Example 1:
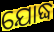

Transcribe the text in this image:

ଯୋଦ୍ଧ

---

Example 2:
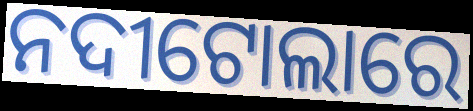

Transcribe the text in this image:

ନଦୀଟୋଲାରେ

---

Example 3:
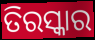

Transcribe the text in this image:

ତିରସ୍କାର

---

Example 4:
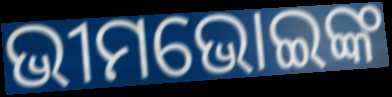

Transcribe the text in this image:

ଭୀମଭୋଇଙ୍କ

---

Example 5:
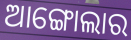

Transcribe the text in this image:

ଆଙ୍ଗୋଲାର